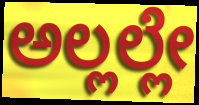
ಅಲ್ಲಲ್ಲೇ